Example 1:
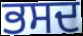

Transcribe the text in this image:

ਭਸਦ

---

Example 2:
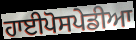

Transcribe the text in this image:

ਹਾਈਪੋਸਪੇਡੀਆ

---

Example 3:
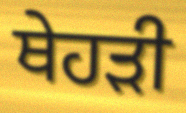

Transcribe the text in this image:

ਥੇਹੜੀ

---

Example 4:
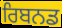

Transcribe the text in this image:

ਰਿਬਨਡ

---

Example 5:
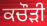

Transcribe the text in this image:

ਕਚੌੜੀ